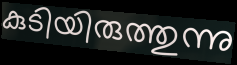
കുടിയിരുത്തുന്നു